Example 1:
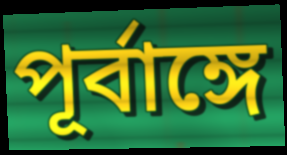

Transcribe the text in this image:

পূর্বাঙ্গে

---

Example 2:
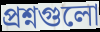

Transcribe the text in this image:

প্রশ্নগুলো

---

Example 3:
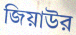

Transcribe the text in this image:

জিয়াউর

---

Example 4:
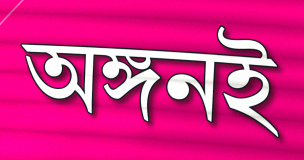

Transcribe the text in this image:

অঙ্গনই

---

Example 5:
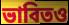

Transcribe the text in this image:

ভাবিতও